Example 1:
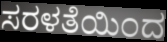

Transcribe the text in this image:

ಸರಳತೆಯಿಂದ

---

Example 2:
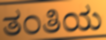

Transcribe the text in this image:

ತಂತಿಯ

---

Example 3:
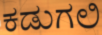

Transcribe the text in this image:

ಕಡುಗಲಿ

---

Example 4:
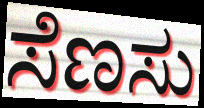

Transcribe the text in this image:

ಸೆಣಸು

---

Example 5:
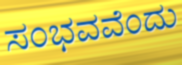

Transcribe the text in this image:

ಸಂಭವವೆಂದು